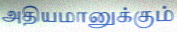
அதியமானுக்கும்